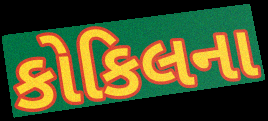
કોકિલના